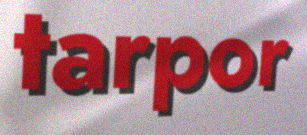
tarpor